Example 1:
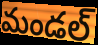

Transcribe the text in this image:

మండల్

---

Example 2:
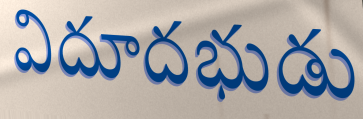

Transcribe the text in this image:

విదూదభుడు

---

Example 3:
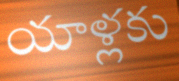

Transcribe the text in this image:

యాళ్లకు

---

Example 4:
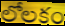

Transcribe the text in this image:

లోలకం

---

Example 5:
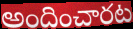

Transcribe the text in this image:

అందించారట